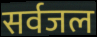
सर्वजल